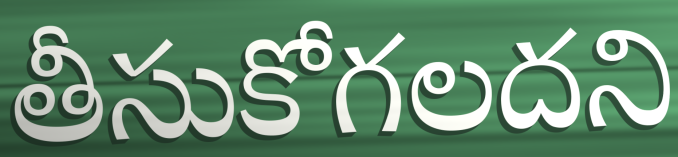
తీసుకోగలదని